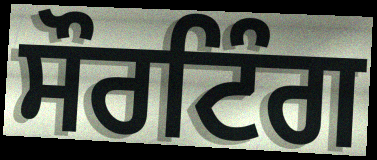
ਸੌਰਟਿੰਗ